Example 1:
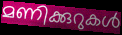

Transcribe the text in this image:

മണിക്കുറുകൾ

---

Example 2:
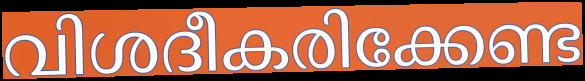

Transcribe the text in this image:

വിശദീകരിക്കേണ്ട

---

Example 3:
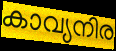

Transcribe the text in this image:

കാവ്യനിര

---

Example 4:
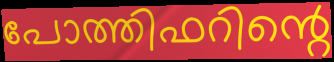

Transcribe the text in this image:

പോത്തിഫറിന്റെ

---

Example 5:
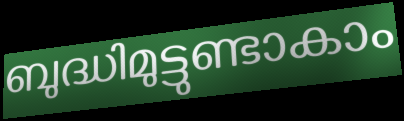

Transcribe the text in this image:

ബുദ്ധിമുട്ടുണ്ടാകാം